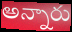
అన్నారు